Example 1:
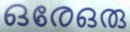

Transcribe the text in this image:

ഒരേഒരു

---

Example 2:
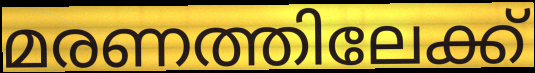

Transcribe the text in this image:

മരണത്തിലേക്ക്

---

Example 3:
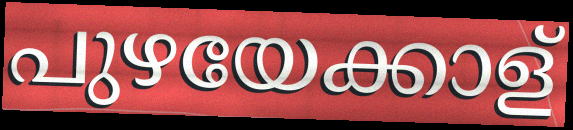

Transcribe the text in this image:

പുഴയേക്കാള്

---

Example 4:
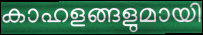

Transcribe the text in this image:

കാഹളങ്ങളുമായി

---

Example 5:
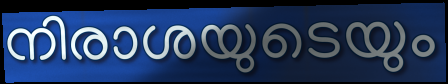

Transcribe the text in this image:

നിരാശയുടെയും